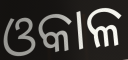
ଓକାଳ